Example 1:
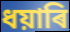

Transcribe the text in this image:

ধয়াৰি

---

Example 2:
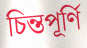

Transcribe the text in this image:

চিন্তপূৰ্ণি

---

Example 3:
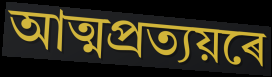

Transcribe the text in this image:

আত্মপ্ৰত্যয়ৰে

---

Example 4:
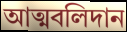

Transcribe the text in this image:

আত্মবলিদান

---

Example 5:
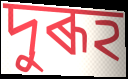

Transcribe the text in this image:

দুৰূহ